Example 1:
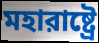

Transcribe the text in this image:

মহারাষ্ট্রে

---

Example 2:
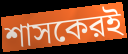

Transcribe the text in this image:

শাসকেরই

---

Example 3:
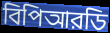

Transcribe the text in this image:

বিপিআরডি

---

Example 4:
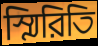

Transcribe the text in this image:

স্মিরিতি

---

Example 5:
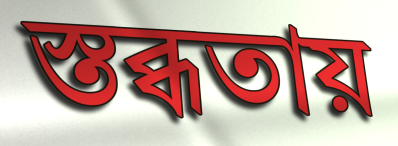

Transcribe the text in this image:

স্তব্ধতায়